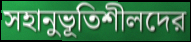
সহানুভূতিশীলদের